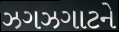
ઝગઝગાટને